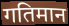
गतिमान